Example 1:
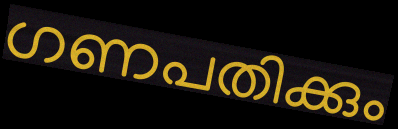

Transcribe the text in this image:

ഗണപതിക്കും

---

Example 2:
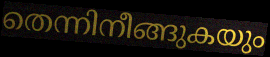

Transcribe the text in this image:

തെന്നിനീങ്ങുകയും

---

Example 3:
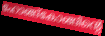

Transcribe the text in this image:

ഹോങ്ങ്കോങ്ങിന്റെ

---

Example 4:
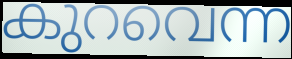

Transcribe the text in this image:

കുറവെന്ന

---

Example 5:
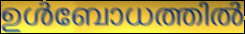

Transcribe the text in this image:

ഉൾബോധത്തിൽ